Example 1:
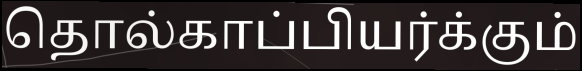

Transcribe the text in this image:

தொல்காப்பியர்க்கும்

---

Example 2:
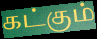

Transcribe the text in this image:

கட்கும்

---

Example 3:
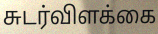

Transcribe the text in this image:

சுடர்விளக்கை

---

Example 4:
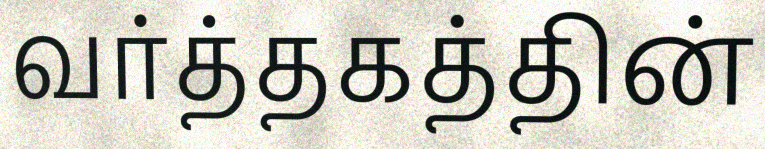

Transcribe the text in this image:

வர்த்தகத்தின்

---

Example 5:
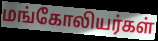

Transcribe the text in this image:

மங்கோலியர்கள்